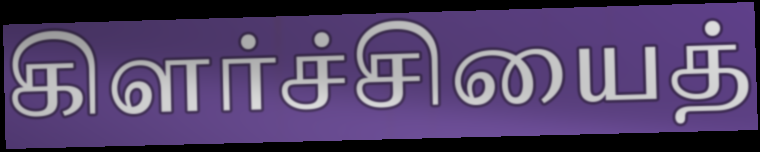
கிளர்ச்சியைத்